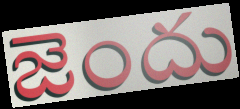
జెందు